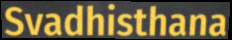
Svadhisthana